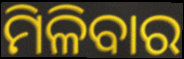
ମିଳିବାର